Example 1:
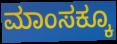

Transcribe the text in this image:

ಮಾಂಸಕ್ಕೂ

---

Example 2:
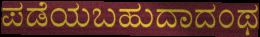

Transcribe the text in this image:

ಪಡೆಯಬಹುದಾದಂಥ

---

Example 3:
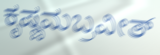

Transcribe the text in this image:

ಕೃಷ್ಣಮಬ್ರವೀತ್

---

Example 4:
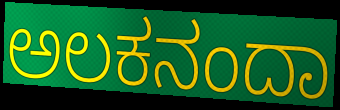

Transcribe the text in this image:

ಅಲಕನಂದಾ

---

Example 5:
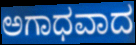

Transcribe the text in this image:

ಅಗಾಧವಾದ